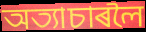
অত্যাচাৰলৈ